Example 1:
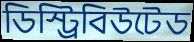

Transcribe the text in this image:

ডিস্ট্রিবিউটেড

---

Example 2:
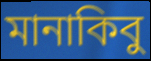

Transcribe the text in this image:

মানাকিবু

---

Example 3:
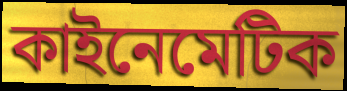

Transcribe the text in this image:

কাইনেমেটিক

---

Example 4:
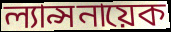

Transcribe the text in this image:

ল্যান্সনায়েক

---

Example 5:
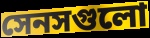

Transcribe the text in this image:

সেনসগুলো